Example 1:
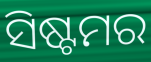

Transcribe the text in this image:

ସିଷ୍ଟମର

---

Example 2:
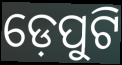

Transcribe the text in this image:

ଡ଼େପୁଟି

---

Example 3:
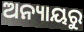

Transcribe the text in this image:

ଅନ୍ୟାୟରୁ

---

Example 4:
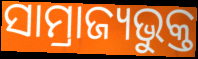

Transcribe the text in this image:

ସାମ୍ରାଜ୍ୟଭୁକ୍ତ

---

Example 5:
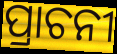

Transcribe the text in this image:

ପ୍ରାଚନୀ